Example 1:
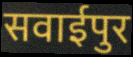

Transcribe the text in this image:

सवाईपुर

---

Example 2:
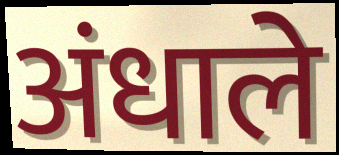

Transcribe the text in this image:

अंधाले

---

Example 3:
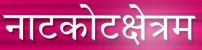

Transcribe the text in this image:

नाटकोटक्षेत्रम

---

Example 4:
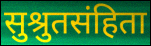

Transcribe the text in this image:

सुश्रुतसंहिता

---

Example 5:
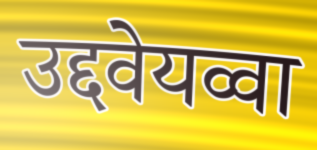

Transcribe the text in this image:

उद्दवेयव्वा